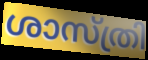
ശാസ്ത്രി